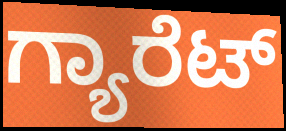
ಗ್ಯಾರೆಟ್